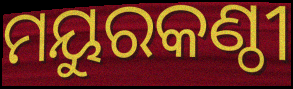
ମୟୁରକଣ୍ଠୀ